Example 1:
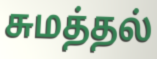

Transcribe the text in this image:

சுமத்தல்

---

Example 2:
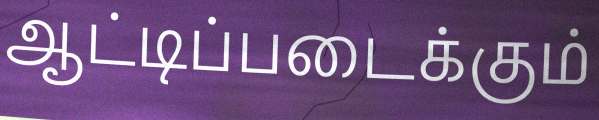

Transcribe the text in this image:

ஆட்டிப்படைக்கும்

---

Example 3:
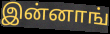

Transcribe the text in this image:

இன்னாங்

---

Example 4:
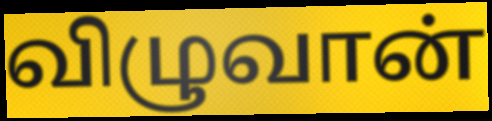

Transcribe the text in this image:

விழுவான்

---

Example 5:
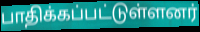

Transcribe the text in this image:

பாதிக்கப்பட்டுள்ளனர்